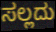
ಸಲ್ಲದು